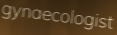
gynaecologist